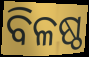
ବିଳଷ୍ଠ